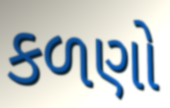
કળણો